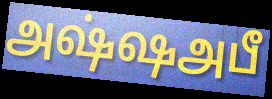
அஷ்ஷஅபீ